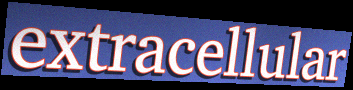
extracellular